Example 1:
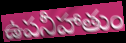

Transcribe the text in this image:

ఉపనీహాతుం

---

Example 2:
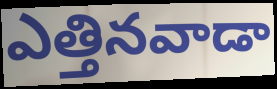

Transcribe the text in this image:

ఎత్తినవాడా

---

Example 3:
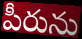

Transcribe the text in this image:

పీరును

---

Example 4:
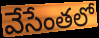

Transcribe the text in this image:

వేసేంతలో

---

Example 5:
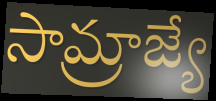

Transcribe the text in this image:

సామ్రాజ్యే